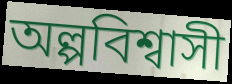
অল্পবিশ্বাসী